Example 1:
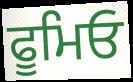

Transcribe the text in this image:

ਫੂਮਿਓ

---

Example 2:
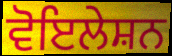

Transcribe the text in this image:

ਵੋਇਲੇਸ਼ਨ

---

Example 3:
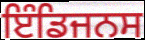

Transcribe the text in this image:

ਇੰਡਿਜਨਸ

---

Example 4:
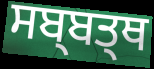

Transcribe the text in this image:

ਸਬ੍ਬਤ੍ਥ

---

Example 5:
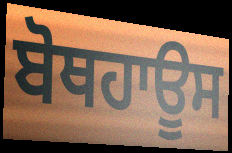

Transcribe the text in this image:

ਬੋਥਹਾਊਸ